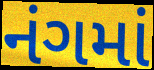
નંગમાં